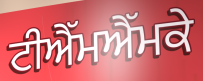
ਟੀਐੱਮਐੱਮਕੇ